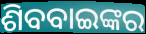
ଶିବବାଇଙ୍କର